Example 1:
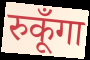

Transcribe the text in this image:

रुकूँगा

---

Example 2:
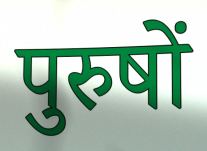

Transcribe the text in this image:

पुरुषों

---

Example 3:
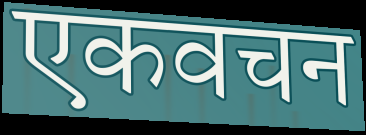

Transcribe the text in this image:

एकवचन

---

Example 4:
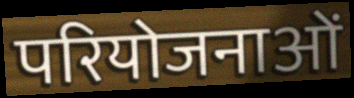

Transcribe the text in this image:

परियोजनाओं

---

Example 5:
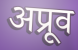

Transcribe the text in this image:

अप्रूव